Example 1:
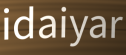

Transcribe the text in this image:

idaiyar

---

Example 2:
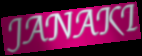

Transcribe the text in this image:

JANAKI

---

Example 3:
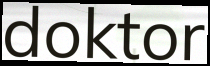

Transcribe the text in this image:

doktor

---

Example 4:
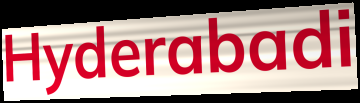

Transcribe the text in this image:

Hyderabadi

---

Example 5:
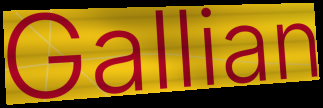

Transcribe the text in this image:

Gallian